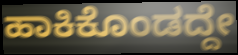
ಹಾಕಿಕೊಂಡದ್ದೇ